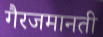
गैरजमानती